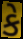
કે